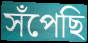
সঁপেছি